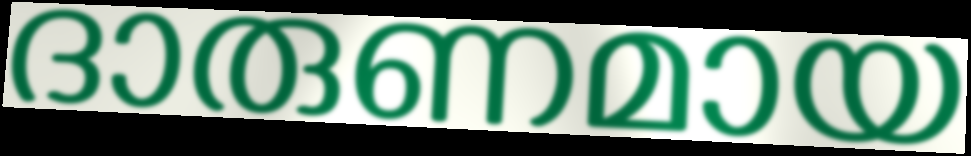
ദാരുണമായ